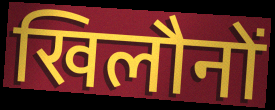
खिलौनों